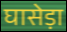
घासेड़ा